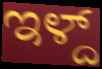
ಇಳ್ದ್